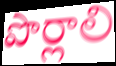
పొర్లాలి